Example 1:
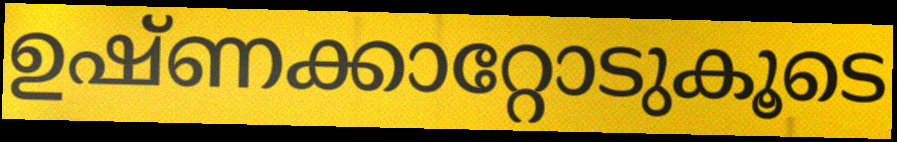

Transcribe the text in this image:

ഉഷ്ണക്കാറ്റോടുകൂടെ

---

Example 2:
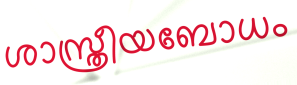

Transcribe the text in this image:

ശാസ്ത്രീയബോധം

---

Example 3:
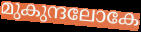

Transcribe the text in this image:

മുകുന്ദലോകേ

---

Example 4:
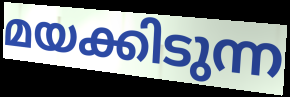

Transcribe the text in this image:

മയക്കിടുന്ന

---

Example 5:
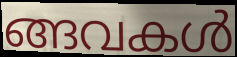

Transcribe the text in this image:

ങ്ങവകൾ